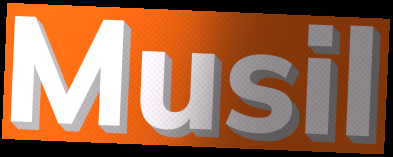
Musil